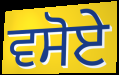
ਵਸੋਏ